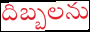
దిబ్బలను